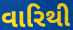
વારિથી